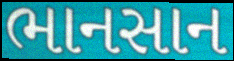
ભાનસાન